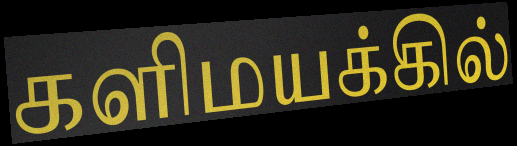
களிமயக்கில்